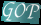
GOP